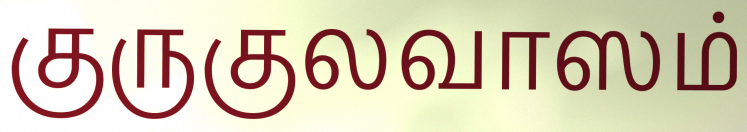
குருகுலவாஸம்